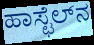
ಹಾಸ್ಟೆಲ್‌ನ